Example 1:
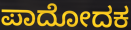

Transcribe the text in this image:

ಪಾದೋದಕ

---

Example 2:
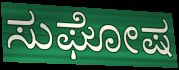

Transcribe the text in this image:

ಸುಘೋಷ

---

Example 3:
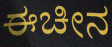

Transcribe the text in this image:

ಈಚೀನ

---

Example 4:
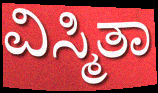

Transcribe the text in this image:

ವಿಸ್ಮಿತಾ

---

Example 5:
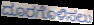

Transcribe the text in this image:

ದೂರಗೊಳಿಸಲು